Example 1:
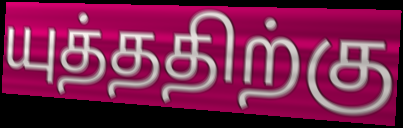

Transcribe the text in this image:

யுத்ததிற்கு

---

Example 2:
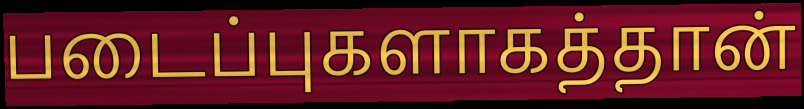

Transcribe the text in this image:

படைப்புகளாகத்தான்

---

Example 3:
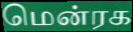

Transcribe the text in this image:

மென்ரக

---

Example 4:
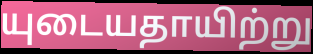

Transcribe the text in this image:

யுடையதாயிற்று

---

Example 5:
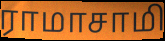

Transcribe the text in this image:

ராமாசாமி